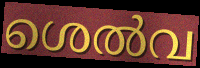
ശെൽവ